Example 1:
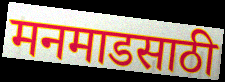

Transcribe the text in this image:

मनमाडसाठी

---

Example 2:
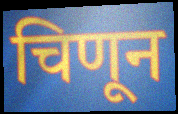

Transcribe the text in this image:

चिणून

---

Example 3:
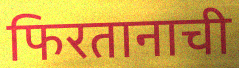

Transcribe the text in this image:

फिरतानाची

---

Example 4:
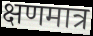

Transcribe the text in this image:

क्षणमात्र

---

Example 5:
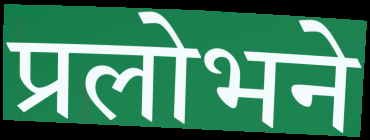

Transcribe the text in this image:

प्रलोभने